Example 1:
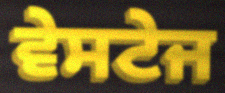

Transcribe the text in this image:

ਵੇਸਟੇਜ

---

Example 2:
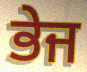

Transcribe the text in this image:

ਭੇਜ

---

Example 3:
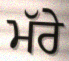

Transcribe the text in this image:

ਮੱਰੇ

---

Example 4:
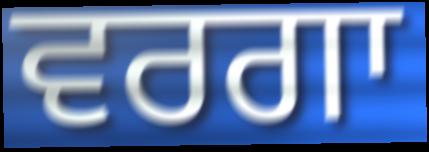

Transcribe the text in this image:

ਵਰਗਾ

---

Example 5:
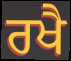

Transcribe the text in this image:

ਰਖੈ